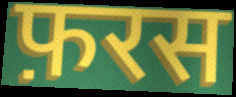
फ़रस